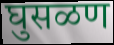
घुसळण